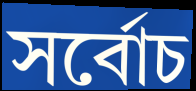
সৰ্বোচ